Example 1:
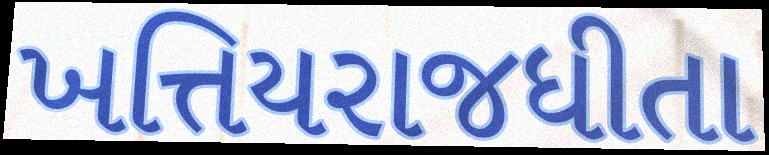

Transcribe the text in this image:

ખત્તિયરાજધીતા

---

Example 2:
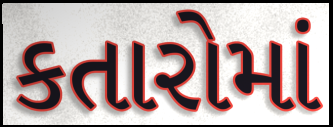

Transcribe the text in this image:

કતારોમાં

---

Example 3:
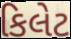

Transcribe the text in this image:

કિલેટ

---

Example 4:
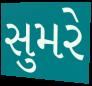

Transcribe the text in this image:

સુમરે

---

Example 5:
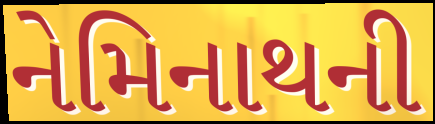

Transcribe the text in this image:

નેમિનાથની